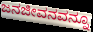
ಜನಜೀವನವನ್ನೂ